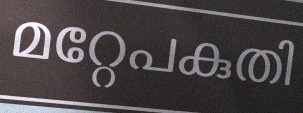
മറ്റേപകുതി